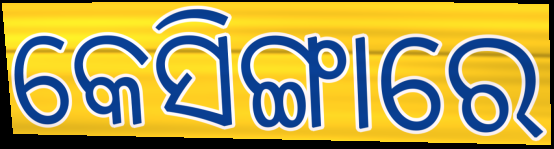
କେସିଙ୍ଗାରେ